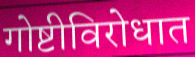
गोष्टीविरोधात